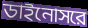
ডাইনোসরে